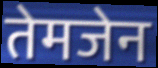
तेमजेन